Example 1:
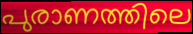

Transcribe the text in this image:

പുരാണത്തിലെ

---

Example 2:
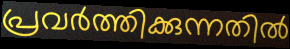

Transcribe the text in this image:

പ്രവർത്തിക്കുന്നതിൽ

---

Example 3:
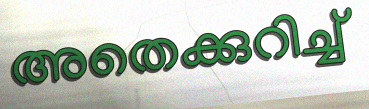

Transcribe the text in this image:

അതെക്കുറിച്ച്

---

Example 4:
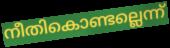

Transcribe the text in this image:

നീതികൊണ്ടല്ലെന്ന്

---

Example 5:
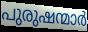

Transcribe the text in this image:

പുരുഷന്മാർ